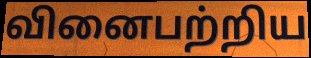
வினைபற்றிய